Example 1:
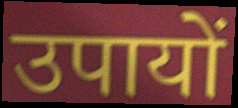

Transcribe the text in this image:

उपायों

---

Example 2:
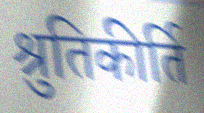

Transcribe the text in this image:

श्रुतिकीर्ति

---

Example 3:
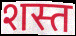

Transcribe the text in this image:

शस्त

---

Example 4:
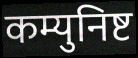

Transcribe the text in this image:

कम्युनिष्ट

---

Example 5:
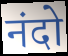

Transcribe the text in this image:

नंदो